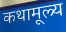
कथामूल्य